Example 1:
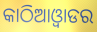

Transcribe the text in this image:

କାଠିଆଓ୍ୱାଡର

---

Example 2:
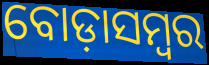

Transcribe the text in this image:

ବୋଡ଼ାସମ୍ବର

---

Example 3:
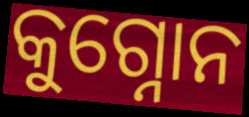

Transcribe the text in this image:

କୁଗ୍ନୋନ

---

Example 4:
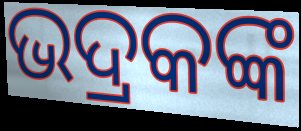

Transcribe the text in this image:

ଭଦ୍ରକଙ୍କ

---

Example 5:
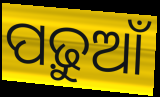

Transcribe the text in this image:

ପଢ଼ୁଆଁ